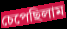
চেপেছিলাম